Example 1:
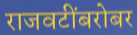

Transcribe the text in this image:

राजवटींबरोबर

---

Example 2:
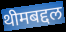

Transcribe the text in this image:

थीमबद्दल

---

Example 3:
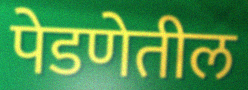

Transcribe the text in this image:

पेडणेतील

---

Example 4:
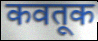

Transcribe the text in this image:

कवतूक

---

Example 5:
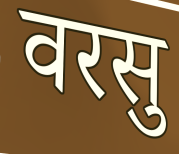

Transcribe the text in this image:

वरसु